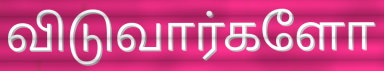
விடுவார்களோ